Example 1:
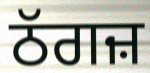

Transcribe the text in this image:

ਠੱਗਜ਼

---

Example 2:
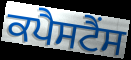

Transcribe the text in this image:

ਕਪੈਸਟੈਂਸ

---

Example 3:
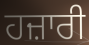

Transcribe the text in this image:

ਹਜ਼ਾਰੀ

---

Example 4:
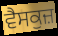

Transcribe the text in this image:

ਵੈਸਕੁਜ਼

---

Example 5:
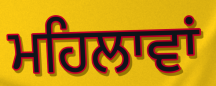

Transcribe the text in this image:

ਮਹਿਲਾਵਾਂ